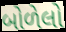
બોળેલો